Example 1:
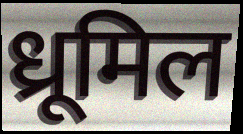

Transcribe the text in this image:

ध्रूमिल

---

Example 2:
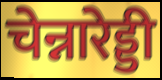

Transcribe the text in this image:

चेन्नारेड्डी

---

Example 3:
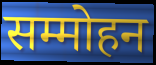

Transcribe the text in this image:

सम्मोहन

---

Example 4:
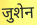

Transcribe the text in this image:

जुशेन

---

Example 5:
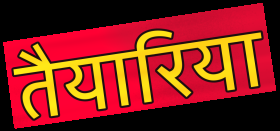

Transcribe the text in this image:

तैयारिया